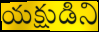
యక్షుడిని